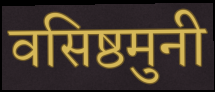
वसिष्ठमुनी